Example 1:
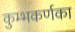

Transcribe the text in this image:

कुम्भकर्णका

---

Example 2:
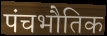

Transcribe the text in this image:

पंचभौतिक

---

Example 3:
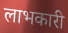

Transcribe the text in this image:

लाभकारी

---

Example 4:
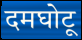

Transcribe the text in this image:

दमघोटू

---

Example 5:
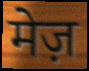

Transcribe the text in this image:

मेज़